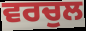
ਵਰਚੁਲ